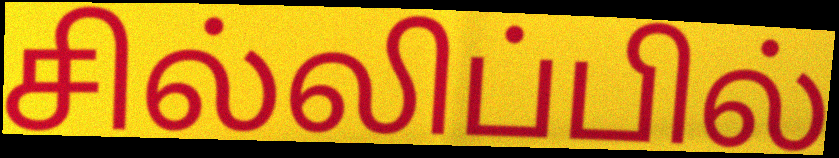
சில்லிப்பில்